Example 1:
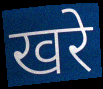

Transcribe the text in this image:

खरे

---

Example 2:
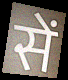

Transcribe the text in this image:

सें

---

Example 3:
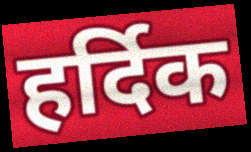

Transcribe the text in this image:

हर्दिक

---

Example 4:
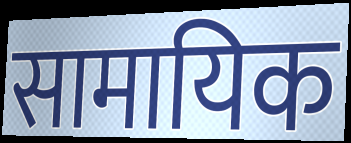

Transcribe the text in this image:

सामायिक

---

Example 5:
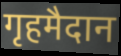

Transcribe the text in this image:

गृहमैदान